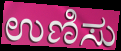
ಉಣಿಸು